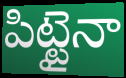
పిట్టైనా